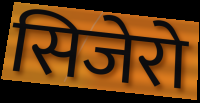
सिजेरो